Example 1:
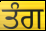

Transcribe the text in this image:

ਤੰਗ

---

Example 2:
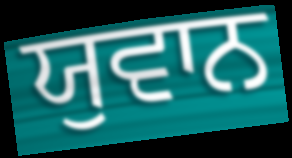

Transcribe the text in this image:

ਯੁਵਾਨ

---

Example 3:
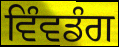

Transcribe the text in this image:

ਵਿੰਵਡੰਗ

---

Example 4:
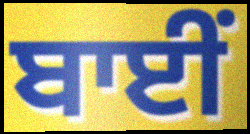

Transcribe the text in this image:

ਬਾਈਂ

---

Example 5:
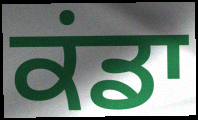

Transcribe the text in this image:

ਕਂਡਾ